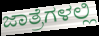
ಜಾತ್ರೆಗಳಲ್ಲಿ